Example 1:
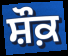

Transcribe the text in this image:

ਸ਼ੌਕ਼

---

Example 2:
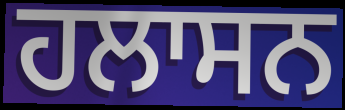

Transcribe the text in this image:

ਹਲਾਸਨ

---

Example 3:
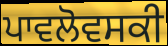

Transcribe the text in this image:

ਪਾਵਲੋਵਸਕੀ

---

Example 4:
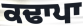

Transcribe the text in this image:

ਕਢਾਪਾ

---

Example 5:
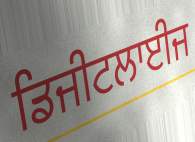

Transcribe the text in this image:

ਡਿਜੀਟਲਾਈਜ